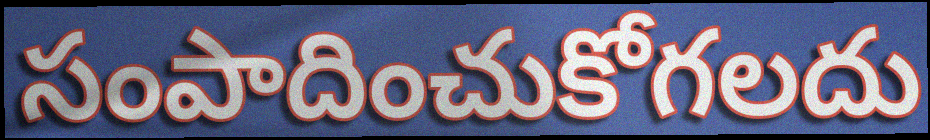
సంపాదించుకోగలదు